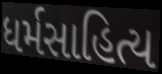
ધર્મસાહિત્ય